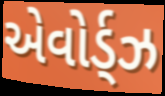
એવોર્ડ્ઝ